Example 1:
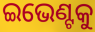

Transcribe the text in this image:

ଇଭେଣ୍ଟକୁ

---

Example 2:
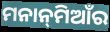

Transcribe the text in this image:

ମନାନ୍‌ମିଆଁର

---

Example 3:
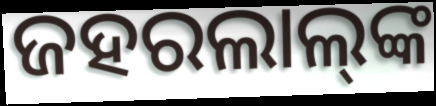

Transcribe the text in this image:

ଜହରଲାଲ୍‌ଙ୍କ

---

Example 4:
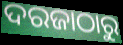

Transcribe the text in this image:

ଦରଜାଠାରୁ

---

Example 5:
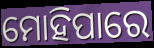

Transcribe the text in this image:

ମୋହିପାରେ